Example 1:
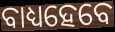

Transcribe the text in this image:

ବାଧ୍ୟହେବେ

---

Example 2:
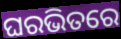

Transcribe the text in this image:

ଘରଭିତରେ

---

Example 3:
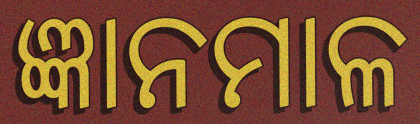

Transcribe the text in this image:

ଜ୍ଞାନମାଳ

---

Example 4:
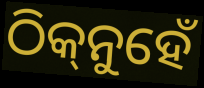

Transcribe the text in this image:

ଠିକ୍‌ନୁହେଁ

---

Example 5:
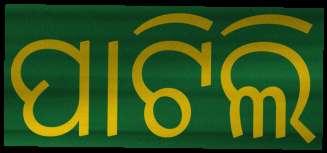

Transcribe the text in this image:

ପାଟିଲି